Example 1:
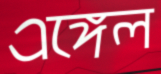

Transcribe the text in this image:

এঙ্গেল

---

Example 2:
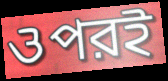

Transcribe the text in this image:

ওপরই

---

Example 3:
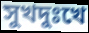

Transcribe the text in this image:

সুখদুঃখে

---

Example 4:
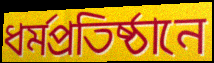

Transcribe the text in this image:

ধর্মপ্রতিষ্ঠানে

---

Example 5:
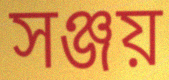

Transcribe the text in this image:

সঞ্জয়